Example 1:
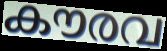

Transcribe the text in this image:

കൗരവ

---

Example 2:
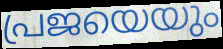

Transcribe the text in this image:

പ്രജയെയും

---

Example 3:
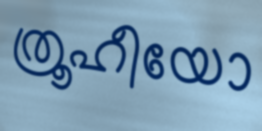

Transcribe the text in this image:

ത്രൂഹീയോ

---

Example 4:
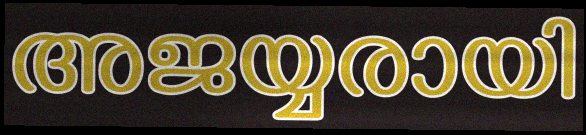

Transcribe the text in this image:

അജയ്യരായി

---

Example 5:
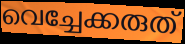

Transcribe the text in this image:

വെച്ചേക്കരുത്